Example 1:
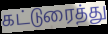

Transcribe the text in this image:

கட்டுரைத்து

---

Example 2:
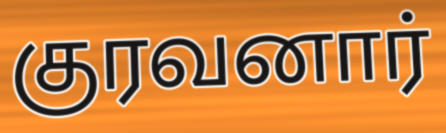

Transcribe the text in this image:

குரவனார்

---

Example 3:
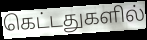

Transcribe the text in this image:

கெட்டதுகளில்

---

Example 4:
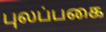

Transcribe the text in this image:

புலப்பகை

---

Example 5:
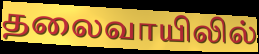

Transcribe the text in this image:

தலைவாயிலில்